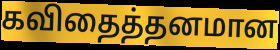
கவிதைத்தனமான